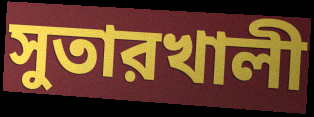
সুতারখালী